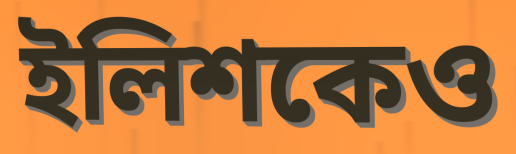
ইলিশকেও